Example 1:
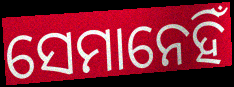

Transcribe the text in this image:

ସେମାନେହିଁ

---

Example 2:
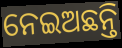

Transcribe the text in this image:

ନେଇଅଛନ୍ତି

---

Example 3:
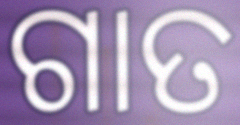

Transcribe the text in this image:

ଗାତ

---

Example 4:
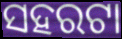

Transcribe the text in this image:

ସହରଟା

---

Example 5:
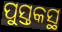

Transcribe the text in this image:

ପୁସ୍ତକସ୍ଥ